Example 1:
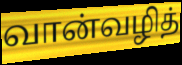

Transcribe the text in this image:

வான்வழித்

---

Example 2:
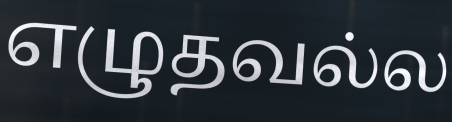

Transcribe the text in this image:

எழுதவல்ல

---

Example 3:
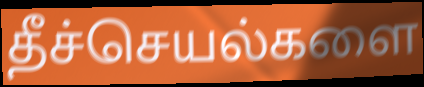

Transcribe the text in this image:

தீச்செயல்களை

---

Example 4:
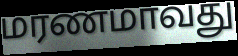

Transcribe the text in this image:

மரணமாவது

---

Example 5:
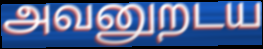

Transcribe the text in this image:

அவனுறடய